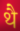
थै